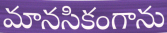
మానసికంగాను